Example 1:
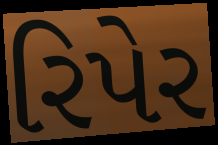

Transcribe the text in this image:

રિપેર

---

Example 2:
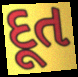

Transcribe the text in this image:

દૂત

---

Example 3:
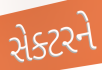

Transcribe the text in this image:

સેક્ટરને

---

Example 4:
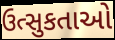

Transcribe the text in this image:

ઉત્સુકતાઓ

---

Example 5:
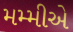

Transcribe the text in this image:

મમ્મીએ